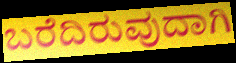
ಬರೆದಿರುವುದಾಗಿ